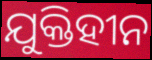
ଯୁକ୍ତିହୀନ